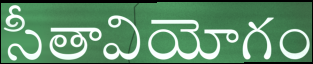
సీతావియోగం